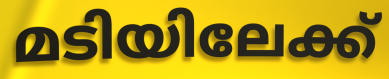
മടിയിലേക്ക്